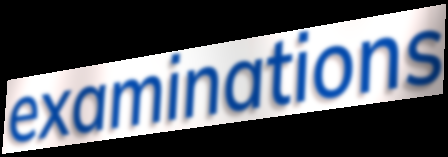
examinations